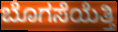
ಬೊಗಸೆಯೆತ್ತಿ